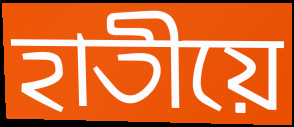
হাতীয়ে